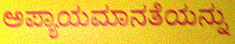
ಅಪ್ಯಾಯಮಾನತೆಯನ್ನು